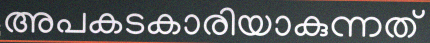
അപകടകാരിയാകുന്നത്